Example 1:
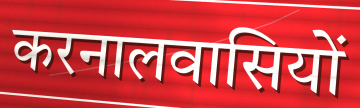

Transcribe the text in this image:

करनालवासियों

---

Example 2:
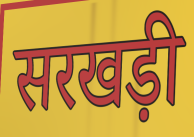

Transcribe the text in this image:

सरखड़ी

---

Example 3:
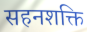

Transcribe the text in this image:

सहनशक्ति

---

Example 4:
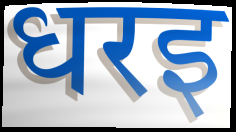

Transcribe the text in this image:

धरइ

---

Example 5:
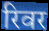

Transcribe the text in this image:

रिवर